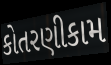
કોતરણીકામ